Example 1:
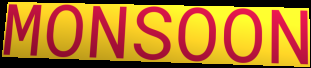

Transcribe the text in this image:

MONSOON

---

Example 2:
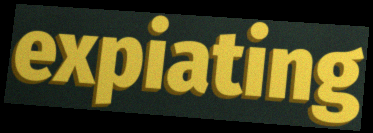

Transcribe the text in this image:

expiating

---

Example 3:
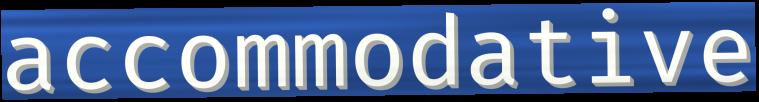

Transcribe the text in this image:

accommodative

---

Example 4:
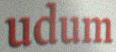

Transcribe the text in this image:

udum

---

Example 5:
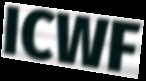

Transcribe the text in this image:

ICWF